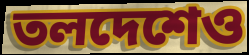
তলদেশেও